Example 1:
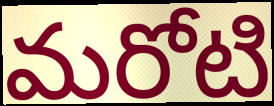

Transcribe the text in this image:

మరోటి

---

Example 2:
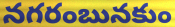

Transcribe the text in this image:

నగరంబునకుం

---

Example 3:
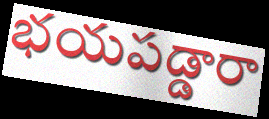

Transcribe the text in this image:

భయపడ్డారా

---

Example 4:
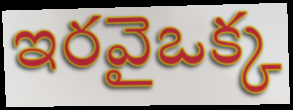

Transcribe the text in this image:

ఇరవైఒక్క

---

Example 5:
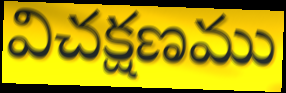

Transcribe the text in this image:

విచక్షణము